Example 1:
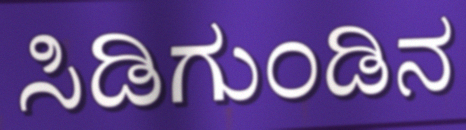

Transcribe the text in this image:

ಸಿಡಿಗುಂಡಿನ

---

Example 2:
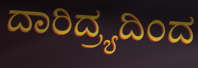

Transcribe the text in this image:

ದಾರಿದ್ರ್ಯದಿಂದ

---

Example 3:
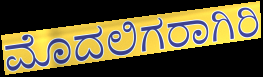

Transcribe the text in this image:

ಮೊದಲಿಗರಾಗಿರಿ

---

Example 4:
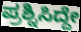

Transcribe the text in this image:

ಪ್ರಶ್ನಿಸಿದ್ದೇ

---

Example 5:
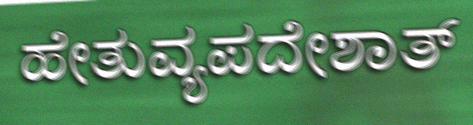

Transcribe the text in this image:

ಹೇತುವ್ಯಪದೇಶಾತ್